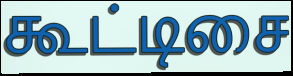
கூட்டிசை